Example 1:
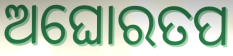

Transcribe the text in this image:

ଅଘୋରତପ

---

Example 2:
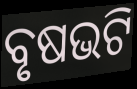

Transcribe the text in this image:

ବୃଷଭଟି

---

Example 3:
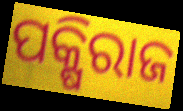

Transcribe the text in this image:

ପକ୍ଷିରାଜ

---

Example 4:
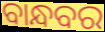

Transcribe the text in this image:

ବାନ୍ଧବର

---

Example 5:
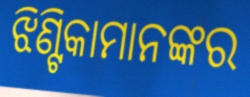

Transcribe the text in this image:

ଝିଣ୍ଟିକାମାନଙ୍କର